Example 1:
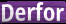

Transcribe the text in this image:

Derfor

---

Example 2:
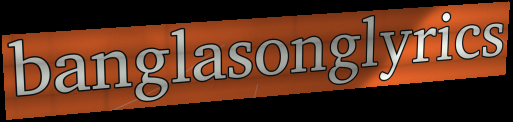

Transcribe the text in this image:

banglasonglyrics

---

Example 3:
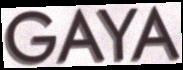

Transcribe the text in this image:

GAYA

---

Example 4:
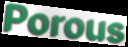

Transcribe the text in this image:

Porous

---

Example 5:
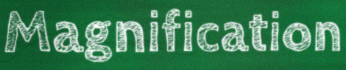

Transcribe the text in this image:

Magnification